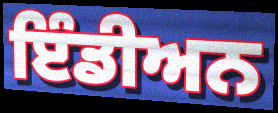
ਇੰਡੀਅਨ